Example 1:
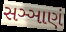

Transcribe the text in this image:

સઞ્ઞાણં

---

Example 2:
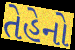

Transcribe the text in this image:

તેહેનો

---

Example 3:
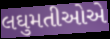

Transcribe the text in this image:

લઘુમતીઓએ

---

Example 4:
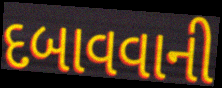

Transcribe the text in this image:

દબાવવાની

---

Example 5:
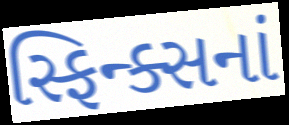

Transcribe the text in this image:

સ્ફિન્ક્સનાં